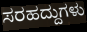
ಸರಹದ್ದುಗಳು